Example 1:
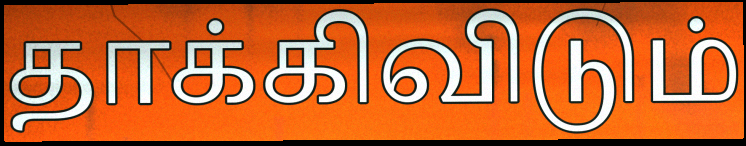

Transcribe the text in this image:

தாக்கிவிடும்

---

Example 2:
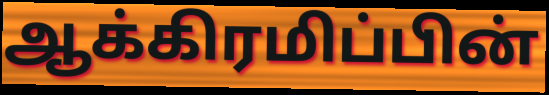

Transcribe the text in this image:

ஆக்கிரமிப்பின்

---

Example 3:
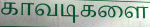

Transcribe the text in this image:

காவடிகளை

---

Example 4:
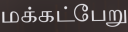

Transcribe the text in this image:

மக்கட்பேறு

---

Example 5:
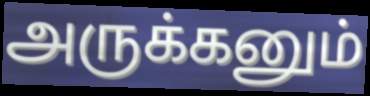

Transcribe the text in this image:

அருக்கனும்